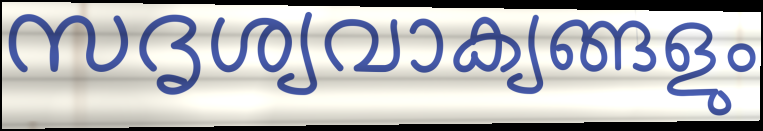
സദൃശ്യവാക്യങ്ങളും